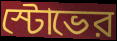
স্টোভের